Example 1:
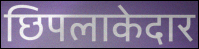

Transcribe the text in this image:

छिपलाकेदार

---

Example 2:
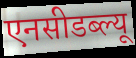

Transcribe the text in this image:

एनसीडब्ल्यू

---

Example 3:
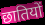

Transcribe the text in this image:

छातियों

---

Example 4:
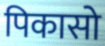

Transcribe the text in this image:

पिकासो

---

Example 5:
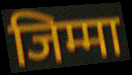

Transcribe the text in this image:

जिम्मा